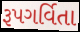
રૂપગર્વિતા